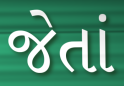
જેતાં